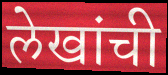
लेखांची